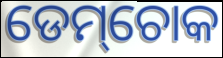
ଡେମ୍‌ଚୋକ